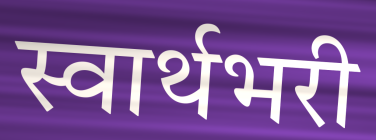
स्वार्थभरी